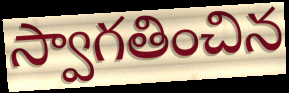
స్వాగతించిన